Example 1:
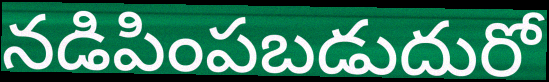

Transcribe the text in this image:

నడిపింపబడుదురో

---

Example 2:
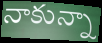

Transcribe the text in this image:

నాకున్నా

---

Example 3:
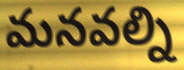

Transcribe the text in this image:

మనవల్ని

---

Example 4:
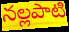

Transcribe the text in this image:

నల్లపాటి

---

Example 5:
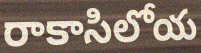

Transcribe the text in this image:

రాకాసిలోయ